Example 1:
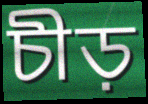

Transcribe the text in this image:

চীড়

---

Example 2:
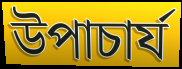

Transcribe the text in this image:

উপাচার্য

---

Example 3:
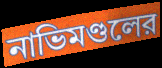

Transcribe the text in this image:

নাভিমণ্ডলের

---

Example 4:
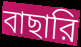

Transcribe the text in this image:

বাছারি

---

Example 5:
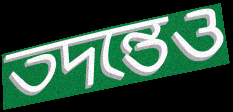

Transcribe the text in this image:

তদন্তেও